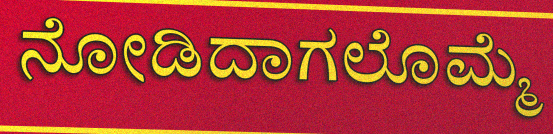
ನೋಡಿದಾಗಲೊಮ್ಮೆ